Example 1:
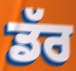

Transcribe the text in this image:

ਡੱਰ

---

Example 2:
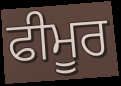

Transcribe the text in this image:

ਫੀਮੂਰ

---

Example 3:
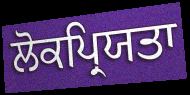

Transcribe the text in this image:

ਲੋਕਪ੍ਰਿਯਤਾ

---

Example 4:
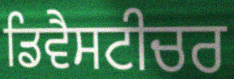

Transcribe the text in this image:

ਡਿਵੈਸਟੀਚਰ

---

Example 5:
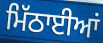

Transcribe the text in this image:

ਮਿੱਠਾਈਆਂ